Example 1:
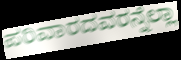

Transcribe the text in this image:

ಪರಿವಾರದವರನ್ನೆಲ್ಲಾ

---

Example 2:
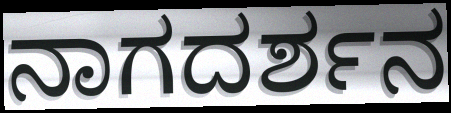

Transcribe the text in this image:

ನಾಗದರ್ಶನ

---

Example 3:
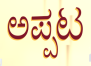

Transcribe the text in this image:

ಅಪ್ಪಟ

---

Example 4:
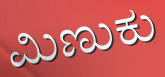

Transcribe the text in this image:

ಮಿಣುಕು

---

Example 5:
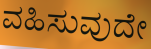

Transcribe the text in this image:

ವಹಿಸುವುದೇ